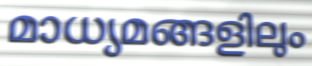
മാധ്യമങ്ങളിലും